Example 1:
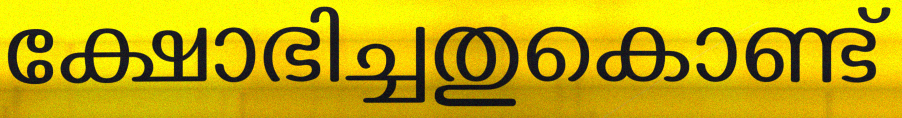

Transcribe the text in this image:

ക്ഷോഭിച്ചതുകൊണ്ട്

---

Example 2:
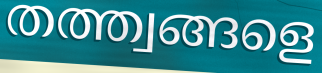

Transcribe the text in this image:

തത്ത്വങ്ങളെ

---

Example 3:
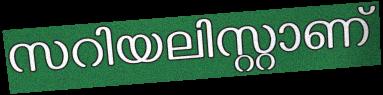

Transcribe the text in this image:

സറിയലിസ്റ്റാണ്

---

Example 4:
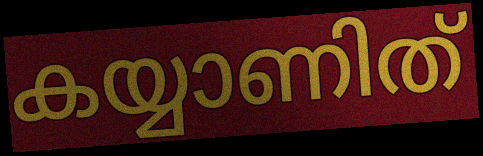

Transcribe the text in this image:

കയ്യാണിത്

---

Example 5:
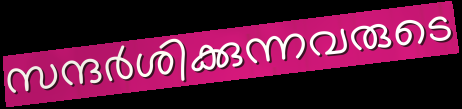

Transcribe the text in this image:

സന്ദർശിക്കുന്നവരുടെ